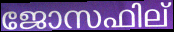
ജോസഫില്